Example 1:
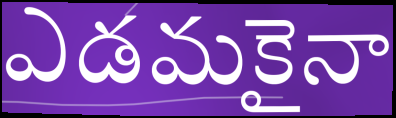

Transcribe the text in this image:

ఎడమకైనా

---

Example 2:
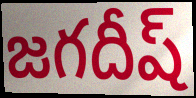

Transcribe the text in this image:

జగదీష్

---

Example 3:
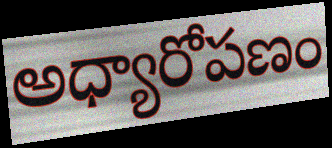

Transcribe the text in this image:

అధ్యారోపణం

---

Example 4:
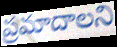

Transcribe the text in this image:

ప్రమాదాలని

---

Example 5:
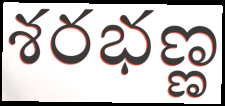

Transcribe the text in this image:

శరభణ్ణ